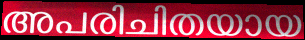
അപരിചിതയായ